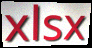
xlsx